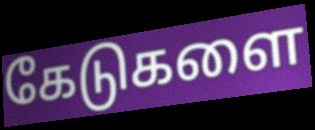
கேடுகளை